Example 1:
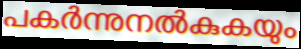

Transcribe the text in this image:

പകർന്നുനൽകുകയും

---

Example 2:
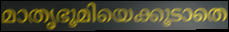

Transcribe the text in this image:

മാതൃഭൂമിയെക്കൂടാതെ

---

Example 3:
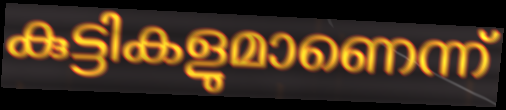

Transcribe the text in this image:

കുട്ടികളുമാണെന്ന്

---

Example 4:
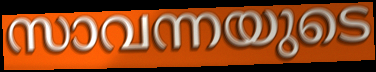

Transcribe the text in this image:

സാവന്നയുടെ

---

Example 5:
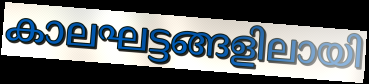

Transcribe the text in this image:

കാലഘട്ടങ്ങളിലായി